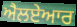
ਐਲਏਆਰ